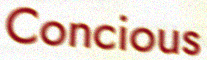
Concious